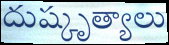
దుష్కృత్యాలు